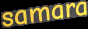
samara